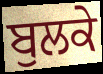
ਬੁਲਕੇ